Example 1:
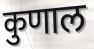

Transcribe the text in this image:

कुणाल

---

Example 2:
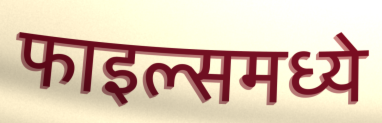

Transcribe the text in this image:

फाइल्समध्ये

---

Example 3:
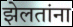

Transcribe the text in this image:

झेलतांना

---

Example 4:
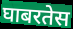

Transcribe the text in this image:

घाबरतेस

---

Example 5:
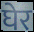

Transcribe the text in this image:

घेर